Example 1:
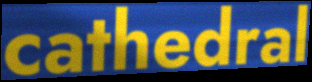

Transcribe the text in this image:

cathedral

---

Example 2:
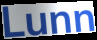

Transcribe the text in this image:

Lunn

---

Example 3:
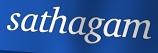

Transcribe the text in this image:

sathagam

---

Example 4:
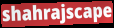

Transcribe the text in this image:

shahrajscape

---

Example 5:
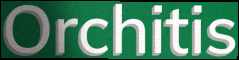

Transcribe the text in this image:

Orchitis